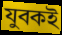
যুবকই